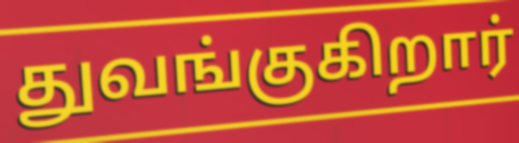
துவங்குகிறார்